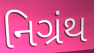
નિગ્રંથ